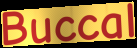
Buccal